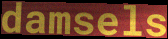
damsels